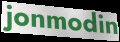
jonmodin